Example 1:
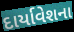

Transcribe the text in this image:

દાર્યાવેશના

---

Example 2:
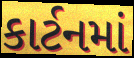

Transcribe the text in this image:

કાર્ટનમાં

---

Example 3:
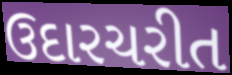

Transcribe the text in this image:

ઉદારચરીત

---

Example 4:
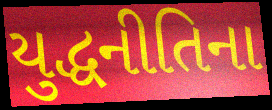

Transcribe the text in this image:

યુદ્ધનીતિના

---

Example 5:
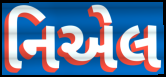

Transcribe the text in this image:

નિએલ